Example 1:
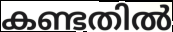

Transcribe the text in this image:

കണ്ടതിൽ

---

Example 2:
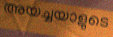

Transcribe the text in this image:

അയച്ചയാളുടെ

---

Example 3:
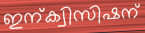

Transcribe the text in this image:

ഇന്ക്വിസിഷന്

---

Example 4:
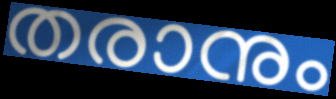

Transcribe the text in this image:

തരാനും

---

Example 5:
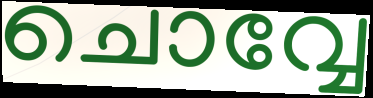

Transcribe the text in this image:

ചൊവ്വേ